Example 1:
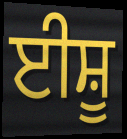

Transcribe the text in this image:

ਈਸ਼ੂ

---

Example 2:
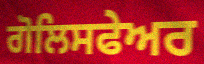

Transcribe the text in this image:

ਗੋਲਿਸਫੇਅਰ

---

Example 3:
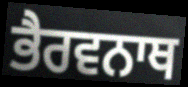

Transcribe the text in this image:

ਭੈਰਵਨਾਥ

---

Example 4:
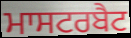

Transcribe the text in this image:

ਮਾਸਟਰਬੈਟ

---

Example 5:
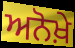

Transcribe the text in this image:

ਅਨੋਖ਼ੇ